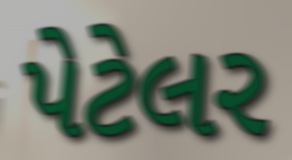
પેટેલર